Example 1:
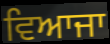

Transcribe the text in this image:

ਵਿਆਜਾ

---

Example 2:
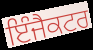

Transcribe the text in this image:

ਇੰਜੈਕਟਰ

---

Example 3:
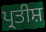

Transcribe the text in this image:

ਪ੍ਰਤੀਸ਼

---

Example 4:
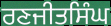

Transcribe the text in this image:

ਰਣਜੀਤਸਿੰਘ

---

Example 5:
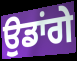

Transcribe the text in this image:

ਉਡਾਂਗੇ